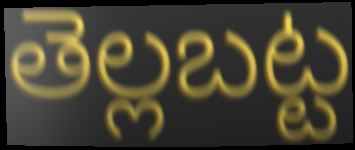
తెల్లబట్ట